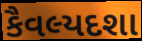
કૈવલ્યદશા